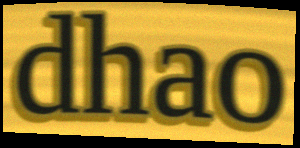
dhao